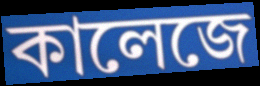
কালেজে